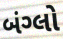
બંગ્લો